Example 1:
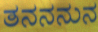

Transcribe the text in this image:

ತನನನುನ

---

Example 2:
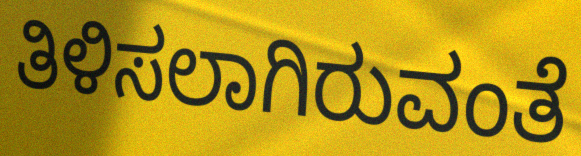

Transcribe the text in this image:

ತಿಳಿಸಲಾಗಿರುವಂತೆ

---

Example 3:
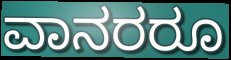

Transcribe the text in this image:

ವಾನರರೂ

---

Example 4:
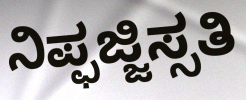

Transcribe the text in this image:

ನಿಪ್ಫಜ್ಜಿಸ್ಸತಿ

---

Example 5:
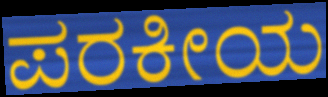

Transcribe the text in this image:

ಪರಕೀಯ